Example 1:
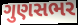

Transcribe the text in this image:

ગુણસભર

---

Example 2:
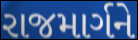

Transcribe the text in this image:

રાજમાર્ગને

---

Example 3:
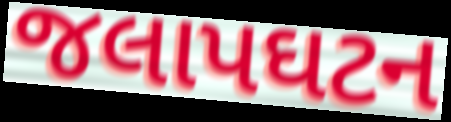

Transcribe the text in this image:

જલાપઘટન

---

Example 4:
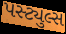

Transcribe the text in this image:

પસ્ટ્યુલ્સ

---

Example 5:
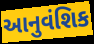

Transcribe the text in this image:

આનુવંશિક